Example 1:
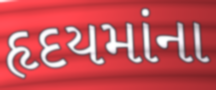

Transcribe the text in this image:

હૃદયમાંના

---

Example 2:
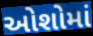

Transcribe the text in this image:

ઓશોમાં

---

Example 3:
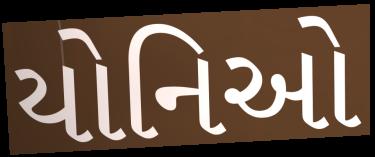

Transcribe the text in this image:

યોનિઓ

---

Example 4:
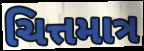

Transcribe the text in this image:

ચિત્તમાત્ર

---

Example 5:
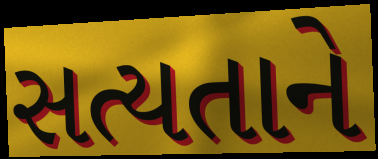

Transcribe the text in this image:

સત્યતાને